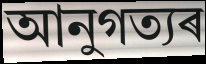
আনুগত্যৰ